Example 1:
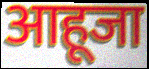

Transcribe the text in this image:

आहूजा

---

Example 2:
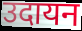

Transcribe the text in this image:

उदायन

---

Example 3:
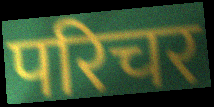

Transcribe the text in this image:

परिचर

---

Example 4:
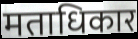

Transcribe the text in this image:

मताधिकार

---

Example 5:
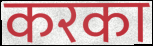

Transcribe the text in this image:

करका